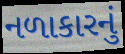
નળાકારનું